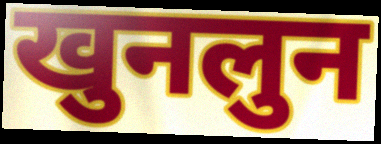
खुनलुन